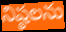
నిష్ఠలను